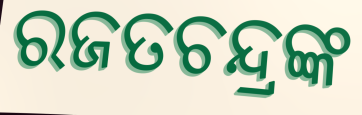
ରଜତଚନ୍ଦ୍ରଙ୍କ